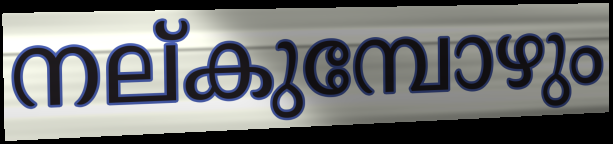
നല്കുമ്പോഴും